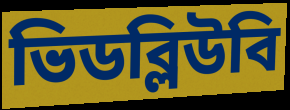
ভিডব্লিউবি